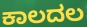
ಕಾಲದಲ